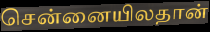
சென்னையிலதான்